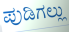
ಪುಡಿಗಲ್ಲು